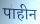
पाहीन